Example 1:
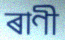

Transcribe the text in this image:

ৰাণী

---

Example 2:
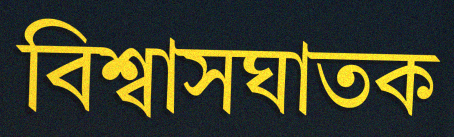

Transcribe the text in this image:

বিশ্বাসঘাতক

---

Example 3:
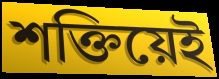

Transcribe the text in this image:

শক্তিয়েই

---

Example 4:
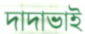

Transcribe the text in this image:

দাদাভাই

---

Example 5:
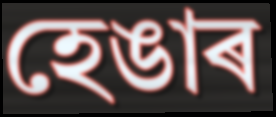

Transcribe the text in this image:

হেঙাৰ